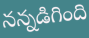
నన్నడిగింది